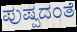
ಪುಷ್ಪದಂತೆ